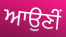
ਆਉਣੀੰ